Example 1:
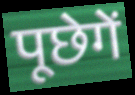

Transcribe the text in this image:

पूछेगें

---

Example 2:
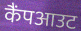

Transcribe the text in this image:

कैंपआउट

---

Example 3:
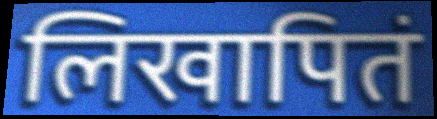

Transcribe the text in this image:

लिखापितं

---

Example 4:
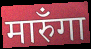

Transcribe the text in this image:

मारुँगा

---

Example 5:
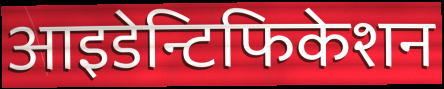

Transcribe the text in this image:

आइडेन्टिफिकेशन